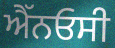
ਐੱਨਓਸੀ